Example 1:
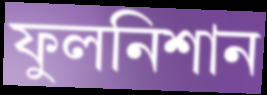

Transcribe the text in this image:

ফুলনিশান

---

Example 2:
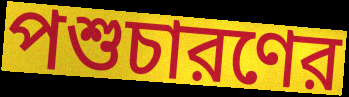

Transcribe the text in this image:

পশুচারণের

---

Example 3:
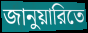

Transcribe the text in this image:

জানুয়ারিতে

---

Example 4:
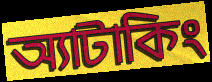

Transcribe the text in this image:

অ্যাটাকিং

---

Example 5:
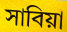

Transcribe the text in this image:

সাবিয়া